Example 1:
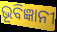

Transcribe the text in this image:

ଭୂବିଜ୍ଞାନୀ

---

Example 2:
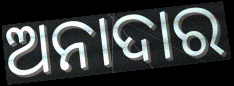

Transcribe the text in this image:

ଅନାଦାର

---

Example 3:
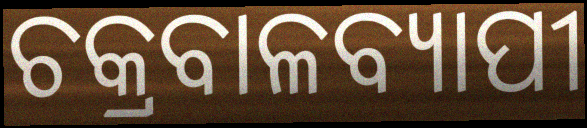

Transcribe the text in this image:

ଚକ୍ରବାଳବ୍ୟାପୀ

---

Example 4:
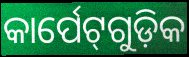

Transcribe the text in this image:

କାର୍ପେଟ୍‌ଗୁଡ଼ିକ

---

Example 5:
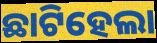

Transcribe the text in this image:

ଛାଟିହେଲା